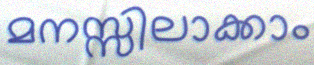
മനസ്സിലാക്കാം